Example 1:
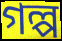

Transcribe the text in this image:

গল্প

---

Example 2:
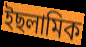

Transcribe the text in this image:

ইছলামিক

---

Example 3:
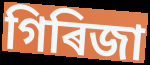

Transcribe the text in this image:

গিৰিজা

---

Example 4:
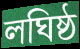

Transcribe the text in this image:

লঘিষ্ঠ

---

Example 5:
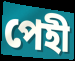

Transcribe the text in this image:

পেহী